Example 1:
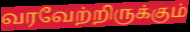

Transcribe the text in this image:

வரவேற்றிருக்கும்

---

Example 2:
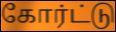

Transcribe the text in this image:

கோர்ட்டு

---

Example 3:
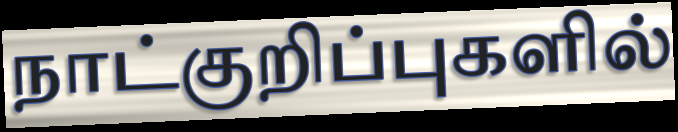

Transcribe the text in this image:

நாட்குறிப்புகளில்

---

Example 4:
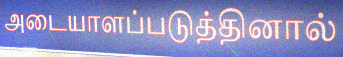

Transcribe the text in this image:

அடையாளப்படுத்தினால்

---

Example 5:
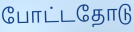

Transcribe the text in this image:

போட்டதோடு